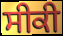
ਸੀਕੀ